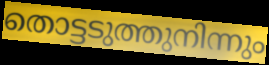
തൊട്ടടുത്തുനിന്നും